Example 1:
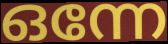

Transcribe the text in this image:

ഒന്നേ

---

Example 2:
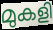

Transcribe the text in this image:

മുകളി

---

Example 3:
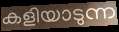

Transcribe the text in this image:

കളിയാടുന്ന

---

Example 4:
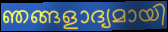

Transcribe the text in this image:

ഞങ്ങളാദ്യമായി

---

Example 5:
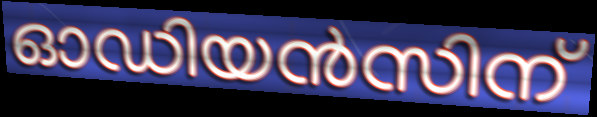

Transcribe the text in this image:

ഓഡിയൻസിന്